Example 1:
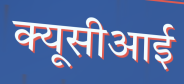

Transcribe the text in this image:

क्यूसीआई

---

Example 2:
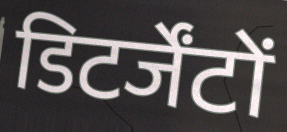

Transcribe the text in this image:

डिटर्जेंटों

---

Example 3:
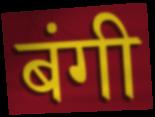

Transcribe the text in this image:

बंगी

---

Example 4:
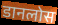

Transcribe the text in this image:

डानलोस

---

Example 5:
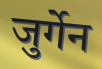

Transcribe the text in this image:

जुर्गेन